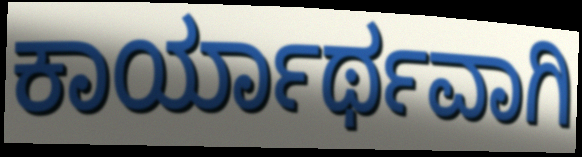
ಕಾರ್ಯಾರ್ಥವಾಗಿ